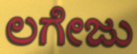
ಲಗೇಜು